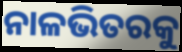
ନାଳଭିତରକୁ